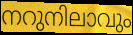
നറുനിലാവും